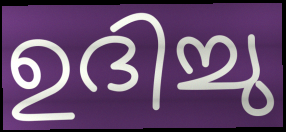
ഉദിച്ചു